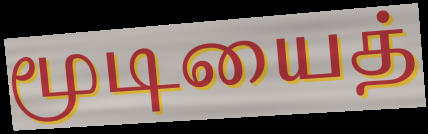
மூடியைத்